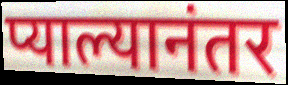
प्याल्यानंतर